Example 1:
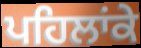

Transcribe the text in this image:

ਪਹਿਲਾਂਕੇ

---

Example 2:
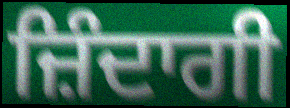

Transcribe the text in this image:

ਜ਼ਿੰਦਾਗੀ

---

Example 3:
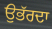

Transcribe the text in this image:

ਉਭੱਰਦਾ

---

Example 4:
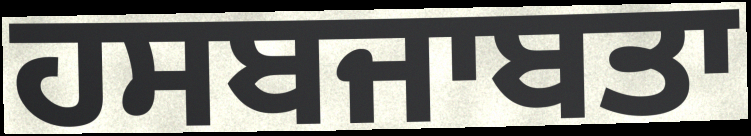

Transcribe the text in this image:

ਹਸਬਜਾਬਤਾ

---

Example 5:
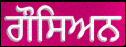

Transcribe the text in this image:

ਗੌਸਿਅਨ